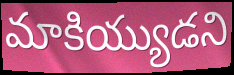
మాకియ్యుడని